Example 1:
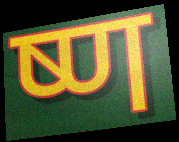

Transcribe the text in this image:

ष्ण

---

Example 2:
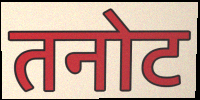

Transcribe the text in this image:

तनोट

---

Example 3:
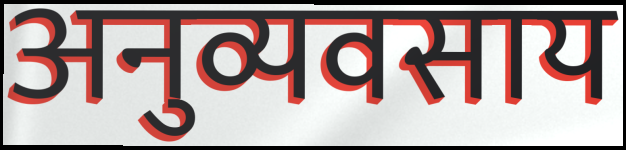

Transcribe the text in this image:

अनुव्यवसाय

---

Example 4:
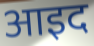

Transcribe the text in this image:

आइद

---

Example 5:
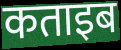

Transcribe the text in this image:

कताइब